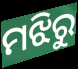
ମଝିରୁ